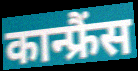
कान्फ्रैंस